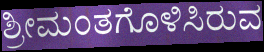
ಶ್ರೀಮಂತಗೊಳಿಸಿರುವ